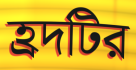
হ্রদটির